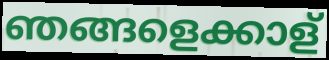
ഞങ്ങളെക്കാള്